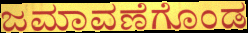
ಜಮಾವಣೆಗೊಂಡ